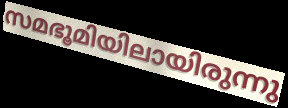
സമഭൂമിയിലായിരുന്നു